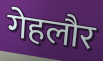
गेहलौर